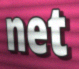
net